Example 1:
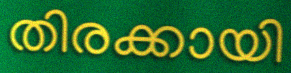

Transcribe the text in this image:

തിരക്കായി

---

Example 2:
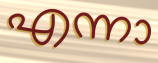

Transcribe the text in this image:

എന്നാ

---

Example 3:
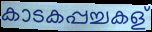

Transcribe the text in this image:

കാടകപ്പച്ചകള്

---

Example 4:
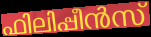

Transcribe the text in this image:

ഫിലിപ്പീൻസ്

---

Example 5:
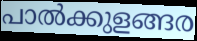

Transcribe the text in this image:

പാൽക്കുളങ്ങര